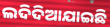
ଲଦିଦିଆଯାଇଛି